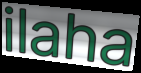
ilaha